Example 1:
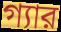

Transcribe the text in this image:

গ্যার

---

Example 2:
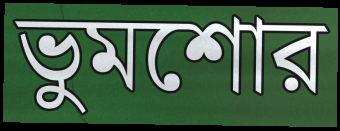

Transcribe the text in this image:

ভুমশোর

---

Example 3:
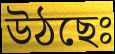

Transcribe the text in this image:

উঠছেঃ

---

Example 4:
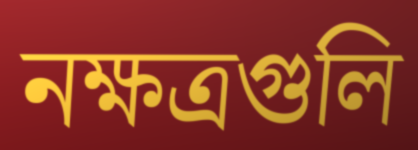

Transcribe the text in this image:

নক্ষত্রগুলি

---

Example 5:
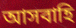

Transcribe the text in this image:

আসবাহি